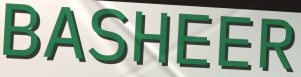
BASHEER